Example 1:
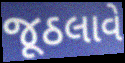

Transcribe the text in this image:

જૂઠલાવે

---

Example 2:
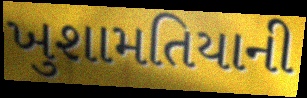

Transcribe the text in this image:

ખુશામતિયાની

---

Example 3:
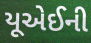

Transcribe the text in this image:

યૂએઈની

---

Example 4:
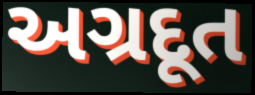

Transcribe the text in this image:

અગ્રદૂત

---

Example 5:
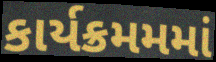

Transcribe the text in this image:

કાર્યક્રમમમાં